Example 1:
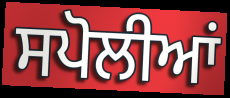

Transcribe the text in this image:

ਸਪੋਲੀਆਂ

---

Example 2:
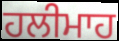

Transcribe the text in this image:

ਹਲੀਮਾਹ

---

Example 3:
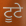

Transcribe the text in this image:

ਟੂਟੇ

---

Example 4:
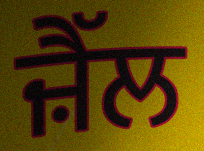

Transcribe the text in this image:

ਜ਼ੈੱਲ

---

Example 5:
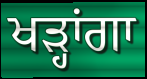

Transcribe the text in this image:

ਖੜ੍ਹਾਂਗਾ